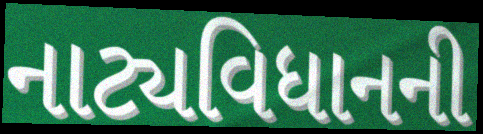
નાટ્યવિધાનની